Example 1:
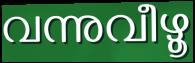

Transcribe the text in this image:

വന്നുവീഴൂ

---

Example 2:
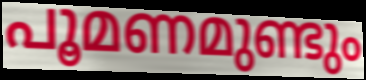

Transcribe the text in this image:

പൂമണമുണ്ടും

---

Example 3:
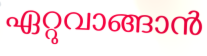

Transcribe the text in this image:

ഏറ്റുവാങ്ങാൻ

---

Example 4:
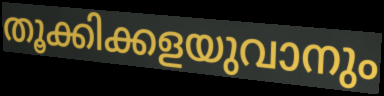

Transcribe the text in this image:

തൂക്കിക്കളയുവാനും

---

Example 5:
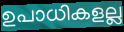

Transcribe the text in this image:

ഉപാധികളല്ല